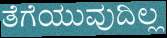
ತೆಗೆಯುವುದಿಲ್ಲ